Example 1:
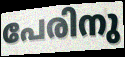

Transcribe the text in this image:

പേരിനു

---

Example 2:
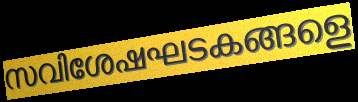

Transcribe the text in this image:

സവിശേഷഘടകങ്ങളെ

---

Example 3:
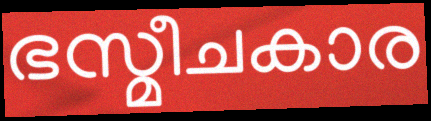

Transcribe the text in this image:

ഭസ്മീചകാര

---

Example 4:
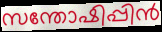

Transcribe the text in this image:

സന്തോഷിപ്പിൻ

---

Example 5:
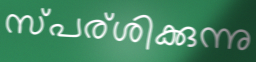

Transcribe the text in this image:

സ്പര്ശിക്കുന്നു